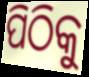
ପିଠିକୁ